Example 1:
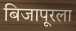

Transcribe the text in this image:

बिजापूरला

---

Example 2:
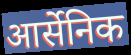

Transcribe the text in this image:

आर्सेनिक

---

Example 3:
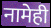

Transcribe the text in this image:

नामेही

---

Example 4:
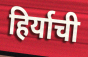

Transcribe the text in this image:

हिर्याची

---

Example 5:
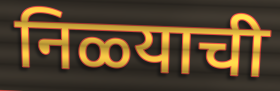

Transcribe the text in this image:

निळ्याची